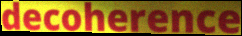
decoherence